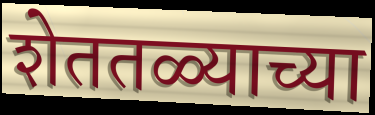
शेततळ्याच्या